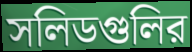
সলিডগুলির